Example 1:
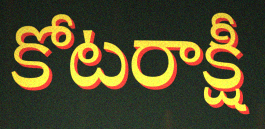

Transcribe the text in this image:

కోటరాక్షీ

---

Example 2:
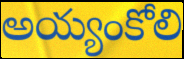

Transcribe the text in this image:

అయ్యంకోలి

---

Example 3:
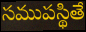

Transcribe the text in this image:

సముపస్థితే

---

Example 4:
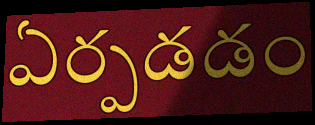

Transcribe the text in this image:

ఏర్పడడం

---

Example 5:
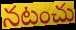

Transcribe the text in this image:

నటంచు